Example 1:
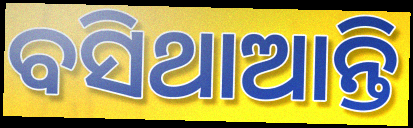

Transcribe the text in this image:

ବସିଥାଆନ୍ତି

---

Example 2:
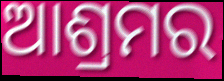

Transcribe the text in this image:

ଆଶ୍ରମର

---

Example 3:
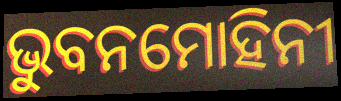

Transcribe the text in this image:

ଭୁବନମୋହିନୀ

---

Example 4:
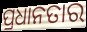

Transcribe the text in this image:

ପ୍ରଧାନତାର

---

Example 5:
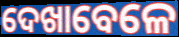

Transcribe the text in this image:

ଦେଖାବେଳେ